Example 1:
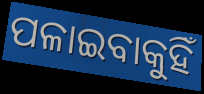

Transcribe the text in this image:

ପଳାଇବାକୁହିଁ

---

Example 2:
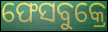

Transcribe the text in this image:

ଫେସବୁକ୍ରେ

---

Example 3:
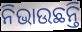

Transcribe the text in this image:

ନିଭାଉଛନ୍ତି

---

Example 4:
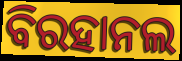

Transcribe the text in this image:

ବିରହାନଲ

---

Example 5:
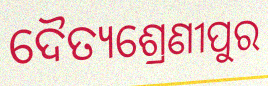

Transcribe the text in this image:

ଦୈତ୍ୟଶ୍ରେଣୀପୁର